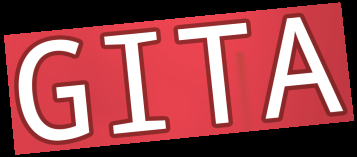
GITA